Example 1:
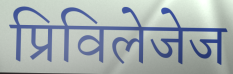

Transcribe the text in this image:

प्रिविलेजेज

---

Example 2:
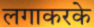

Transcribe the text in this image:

लगाकरके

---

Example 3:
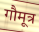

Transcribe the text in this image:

गौमूत्र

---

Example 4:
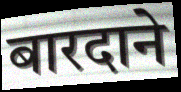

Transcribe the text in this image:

बारदाने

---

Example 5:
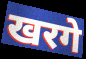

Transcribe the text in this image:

खरगे